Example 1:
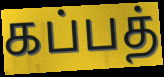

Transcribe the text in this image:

கப்பத்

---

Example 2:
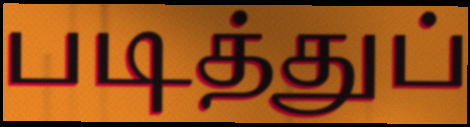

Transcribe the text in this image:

படித்துப்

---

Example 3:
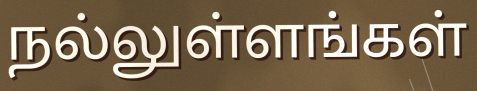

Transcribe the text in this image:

நல்லுள்ளங்கள்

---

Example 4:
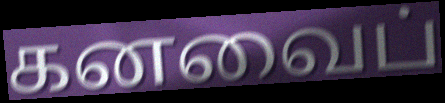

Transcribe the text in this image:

கனவைப்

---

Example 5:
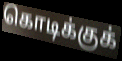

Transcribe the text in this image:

கொடிக்குக்